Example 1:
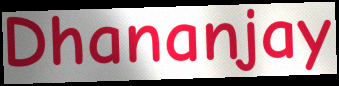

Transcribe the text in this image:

Dhananjay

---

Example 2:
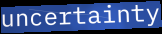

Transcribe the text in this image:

uncertainty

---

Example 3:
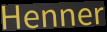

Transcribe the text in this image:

Henner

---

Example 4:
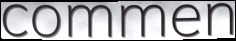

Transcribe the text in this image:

commen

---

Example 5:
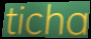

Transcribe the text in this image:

ticha